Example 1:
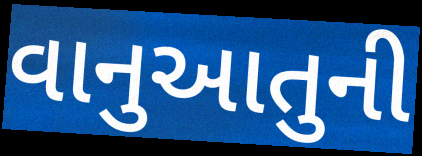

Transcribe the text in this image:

વાનુઆતુની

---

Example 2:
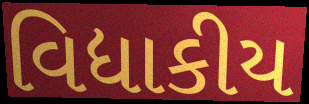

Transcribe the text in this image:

વિદ્યાકીય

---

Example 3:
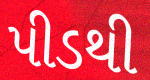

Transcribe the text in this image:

પીડથી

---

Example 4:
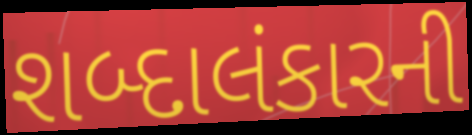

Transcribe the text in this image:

શબ્દાલંકારની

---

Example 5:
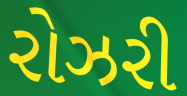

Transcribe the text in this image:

રોઝરી